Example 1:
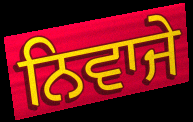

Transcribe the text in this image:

ਨਿਵਾਜੇ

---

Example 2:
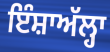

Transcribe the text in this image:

ਇੰਸ਼ਾਅੱਲ੍ਹਾ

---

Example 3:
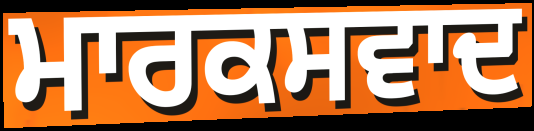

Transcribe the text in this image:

ਮਾਰਕਸਵਾਦ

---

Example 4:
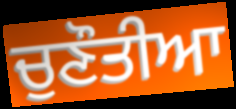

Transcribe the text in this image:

ਚੁਣੌਤੀਆ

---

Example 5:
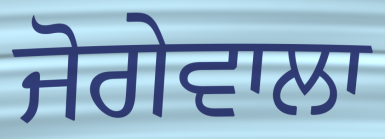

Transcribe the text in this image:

ਜੋਗੇਵਾਲਾ